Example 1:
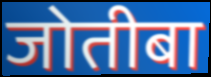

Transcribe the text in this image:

जोतीबा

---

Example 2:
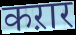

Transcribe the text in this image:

कऱार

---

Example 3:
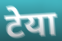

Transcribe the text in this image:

टेया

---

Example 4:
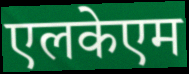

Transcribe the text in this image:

एलकेएम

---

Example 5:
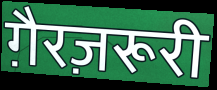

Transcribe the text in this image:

ग़ैरज़रूरी